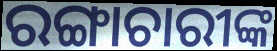
ରଙ୍ଗାଚାରୀଙ୍କ